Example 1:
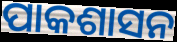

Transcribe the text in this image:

ପାକଶାସନ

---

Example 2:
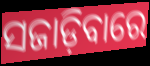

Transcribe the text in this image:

ସଜାଡ଼ିବାରେ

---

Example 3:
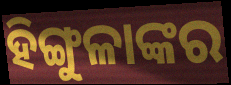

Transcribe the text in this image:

ହିଙ୍ଗୁଳାଙ୍କର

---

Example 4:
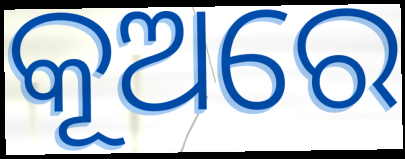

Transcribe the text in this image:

କୂଅରେ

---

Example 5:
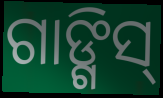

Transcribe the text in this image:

ଗାଙ୍ଗିସ୍